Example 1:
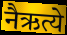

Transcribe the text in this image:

नैऋत्ये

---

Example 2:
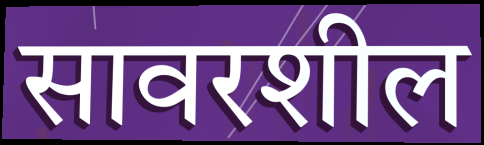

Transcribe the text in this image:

सावरशील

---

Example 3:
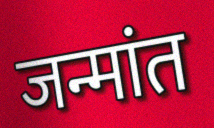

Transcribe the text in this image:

जन्मांत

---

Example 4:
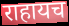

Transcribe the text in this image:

राहायच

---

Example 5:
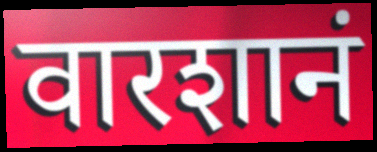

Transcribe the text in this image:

वारशानं